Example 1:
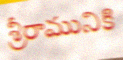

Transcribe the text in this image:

శ్రీరామునికి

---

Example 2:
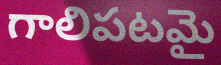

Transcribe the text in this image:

గాలిపటమై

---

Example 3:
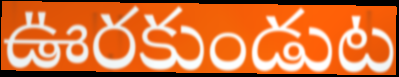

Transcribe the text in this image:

ఊరకుండుట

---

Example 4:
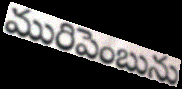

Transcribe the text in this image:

మురిపెంబును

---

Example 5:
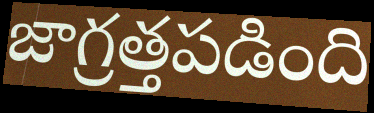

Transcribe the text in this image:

జాగ్రత్తపడింది